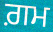
ਗ਼ਮ